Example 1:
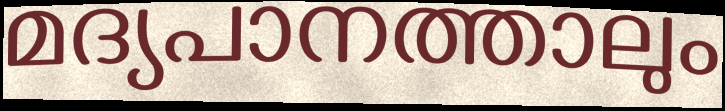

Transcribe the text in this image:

മദ്യപാനത്താലും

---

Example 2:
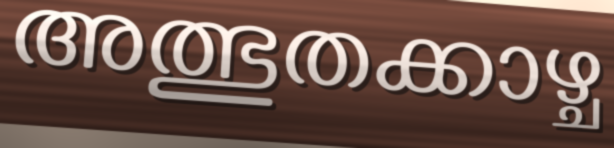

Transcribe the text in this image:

അത്ഭുതക്കാഴ്ച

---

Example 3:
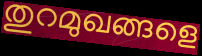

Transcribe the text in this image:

തുറമുഖങ്ങളെ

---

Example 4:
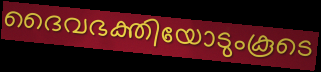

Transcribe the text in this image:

ദൈവഭക്തിയോടുംകൂടെ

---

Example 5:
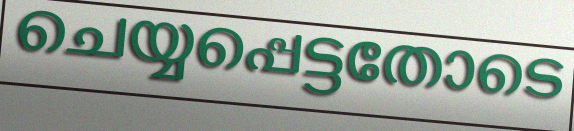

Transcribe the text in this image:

ചെയ്യപ്പെട്ടതോടെ